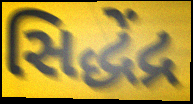
સિદ્ધેંદ્ર